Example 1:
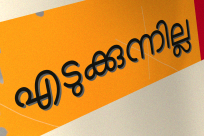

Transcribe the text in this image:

എടുക്കുന്നില്ല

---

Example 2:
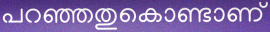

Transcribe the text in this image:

പറഞ്ഞതുകൊണ്ടാണ്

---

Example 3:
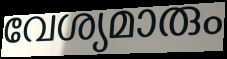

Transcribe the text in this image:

വേശ്യമാരും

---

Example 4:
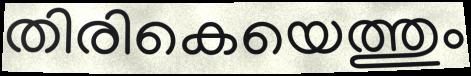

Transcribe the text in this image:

തിരികെയെത്തും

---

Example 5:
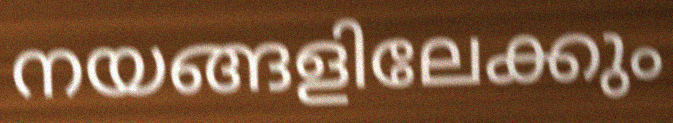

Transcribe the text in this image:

നയങ്ങളിലേക്കും